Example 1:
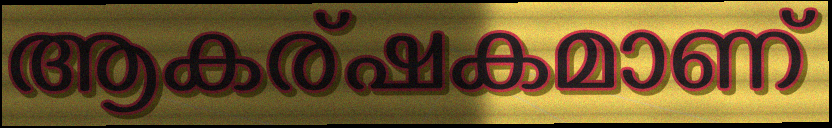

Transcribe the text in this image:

ആകര്ഷകമാണ്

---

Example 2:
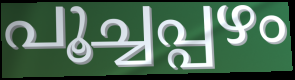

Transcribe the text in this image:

പൂച്ചപ്പഴം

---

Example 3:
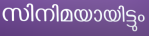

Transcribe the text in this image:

സിനിമയായിട്ടും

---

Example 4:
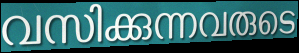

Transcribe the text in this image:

വസിക്കുന്നവരുടെ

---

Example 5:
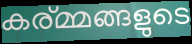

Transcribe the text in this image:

കര്മ്മങ്ങളുടെ